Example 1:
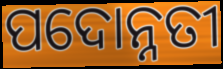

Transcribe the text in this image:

ପଦୋନ୍ନତୀ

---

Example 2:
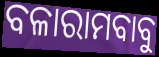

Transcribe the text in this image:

ବଳାରାମବାବୁ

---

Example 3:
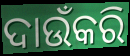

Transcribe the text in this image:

ଦାଉଁକରି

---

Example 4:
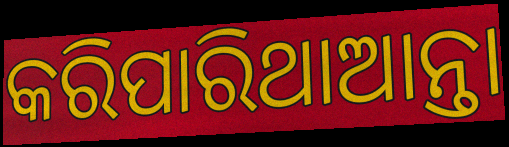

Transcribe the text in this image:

କରିପାରିଥାଆନ୍ତା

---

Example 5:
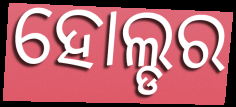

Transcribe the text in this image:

ହୋଲ୍ଡର